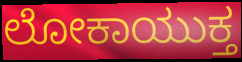
ಲೋಕಾಯುಕ್ತ